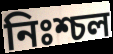
নিঃশ্চল